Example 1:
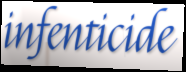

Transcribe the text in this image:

infenticide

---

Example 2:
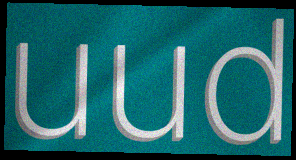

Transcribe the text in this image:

uud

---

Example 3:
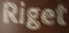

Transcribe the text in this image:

Riget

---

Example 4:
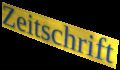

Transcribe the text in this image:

Zeitschrift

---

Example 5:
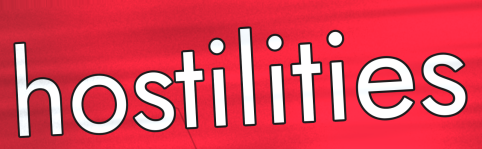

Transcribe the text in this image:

hostilities